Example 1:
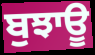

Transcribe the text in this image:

ਬੁਝਾਊ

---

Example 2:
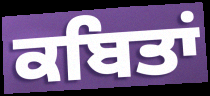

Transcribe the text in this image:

ਕਬਿਤਾਂ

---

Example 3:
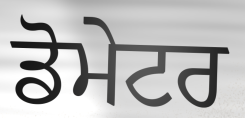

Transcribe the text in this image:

ਡੋਮੇਟਰ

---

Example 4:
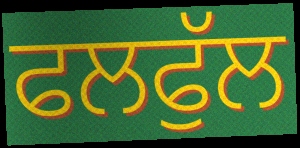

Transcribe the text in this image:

ਫਲਫੁੱਲ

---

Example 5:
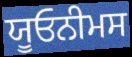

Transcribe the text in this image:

ਯੂਓਨੀਮਸ